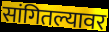
सांगितल्यावर